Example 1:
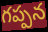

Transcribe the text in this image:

గప్పన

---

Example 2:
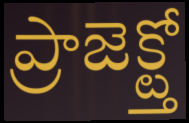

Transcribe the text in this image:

ప్రాజెక్ట్తో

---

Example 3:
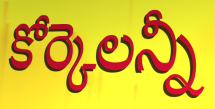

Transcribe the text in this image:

కోర్కెలన్నీ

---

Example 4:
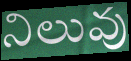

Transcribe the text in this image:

నిలువు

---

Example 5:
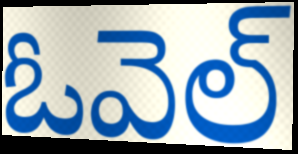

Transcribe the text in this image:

ఓవెల్